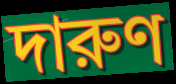
দারুণ